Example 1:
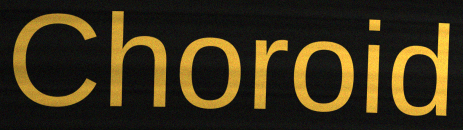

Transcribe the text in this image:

Choroid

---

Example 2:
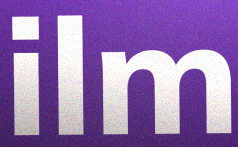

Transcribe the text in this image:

ilm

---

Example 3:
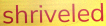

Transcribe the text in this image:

shriveled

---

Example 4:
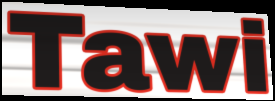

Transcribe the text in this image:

Tawi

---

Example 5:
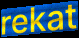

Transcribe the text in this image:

rekat